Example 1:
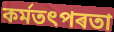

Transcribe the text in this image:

কৰ্মতৎপৰতা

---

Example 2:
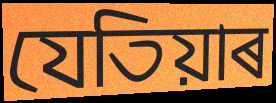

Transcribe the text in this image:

যেতিয়াৰ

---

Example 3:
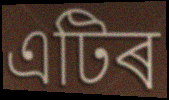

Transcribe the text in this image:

এটিৰ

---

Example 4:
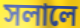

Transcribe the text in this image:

সলালে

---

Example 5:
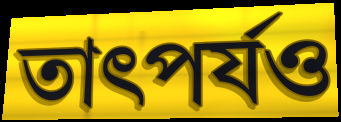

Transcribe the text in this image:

তাৎপৰ্যও